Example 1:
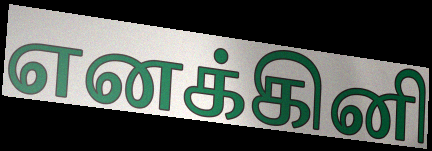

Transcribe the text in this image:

எனக்கினி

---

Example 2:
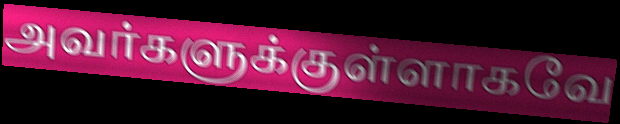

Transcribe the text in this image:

அவர்களுக்குள்ளாகவே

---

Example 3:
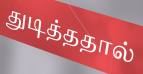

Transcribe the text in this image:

துடித்ததால்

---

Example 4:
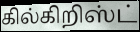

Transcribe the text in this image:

கில்கிறிஸ்ட்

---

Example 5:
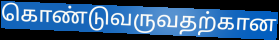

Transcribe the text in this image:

கொண்டுவருவதற்கான